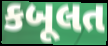
કબૂલત